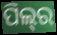
ପିଲ୍‌ର